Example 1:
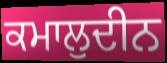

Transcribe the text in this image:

ਕਮਾਲੁਦੀਨ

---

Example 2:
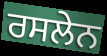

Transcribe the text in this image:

ਰਸਲੇਨ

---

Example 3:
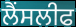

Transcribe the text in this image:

ਲੈਂਸਲੀਫ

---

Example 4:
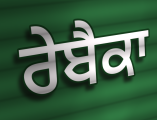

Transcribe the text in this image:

ਰੇਬੈਕਾ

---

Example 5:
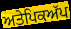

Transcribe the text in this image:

ਅਤੇਪਿਕਅੱਪ